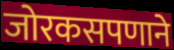
जोरकसपणाने